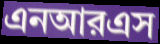
এনআরএস